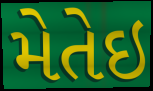
મેતેઇ